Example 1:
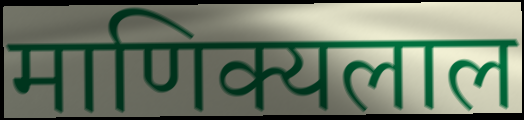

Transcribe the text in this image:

माणिक्यलाल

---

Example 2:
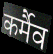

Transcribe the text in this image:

कर्मैव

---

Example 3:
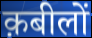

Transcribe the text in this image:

क़बीलों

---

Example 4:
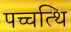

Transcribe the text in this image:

पच्चत्थि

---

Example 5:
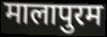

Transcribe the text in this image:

मालापुरम